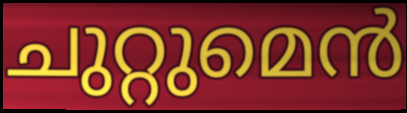
ചുറ്റുമെൻ